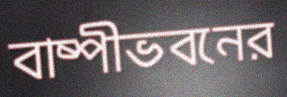
বাষ্পীভবনের